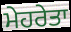
ਮੇਹਰੇਤਾ